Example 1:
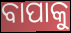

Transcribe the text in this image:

ବାପାକୁ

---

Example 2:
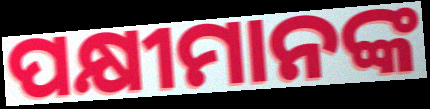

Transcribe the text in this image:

ପକ୍ଷୀମାନଙ୍କ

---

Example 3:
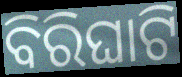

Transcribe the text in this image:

ବିରିଘାଟି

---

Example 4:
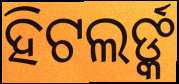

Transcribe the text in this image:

ହିଟଲର୍ଙ୍କ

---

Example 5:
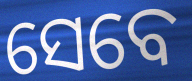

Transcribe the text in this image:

ସେବେ